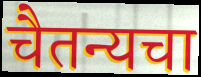
चैतन्यचा